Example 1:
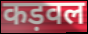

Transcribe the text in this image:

कड़वल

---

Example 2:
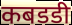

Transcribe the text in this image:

कबडडी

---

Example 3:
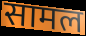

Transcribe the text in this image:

सामल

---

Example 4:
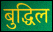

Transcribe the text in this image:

बुद्धिल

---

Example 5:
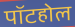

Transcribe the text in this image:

पॉटहोल